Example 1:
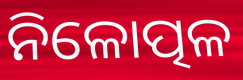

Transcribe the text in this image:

ନିଳୋତ୍ପଳ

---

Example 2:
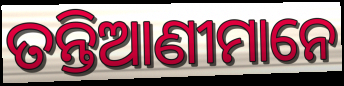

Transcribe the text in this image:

ତନ୍ତିଆଣୀମାନେ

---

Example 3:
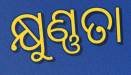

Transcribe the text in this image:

କ୍ଷୁଣ୍ଣତା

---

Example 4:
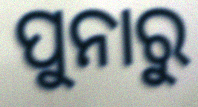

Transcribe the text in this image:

ପୁନାରୁ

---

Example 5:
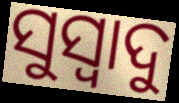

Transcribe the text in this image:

ସୁସ୍ଵାଦୁ